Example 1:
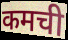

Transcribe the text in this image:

कमची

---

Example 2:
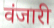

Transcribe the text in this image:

वंजारी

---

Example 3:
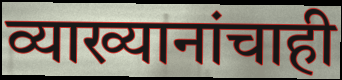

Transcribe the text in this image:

व्याख्यानांचाही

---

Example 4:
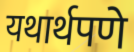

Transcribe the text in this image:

यथार्थपणे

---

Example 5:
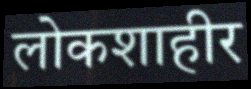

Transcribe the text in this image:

लोकशाहीर